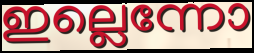
ഇല്ലെന്നോ